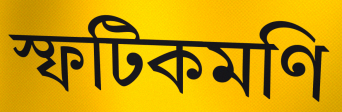
স্ফটিকমণি